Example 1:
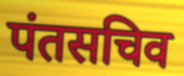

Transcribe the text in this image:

पंतसचिव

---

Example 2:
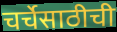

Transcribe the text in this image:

चर्चेसाठीची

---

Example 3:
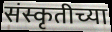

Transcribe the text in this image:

संस्कृतीच्या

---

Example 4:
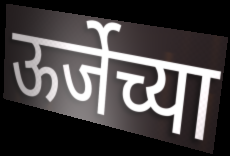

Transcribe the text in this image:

ऊर्जेच्या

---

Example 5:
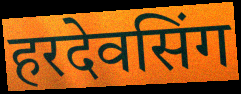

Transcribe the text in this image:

हरदेवसिंग